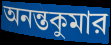
অনন্তকুমার